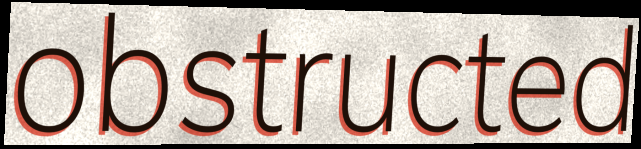
obstructed